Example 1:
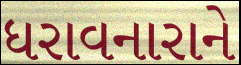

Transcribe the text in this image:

ધરાવનારાને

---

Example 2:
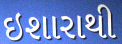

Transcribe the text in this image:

ઇશારાથી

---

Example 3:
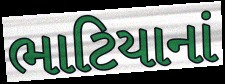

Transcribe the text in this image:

ભાટિયાનાં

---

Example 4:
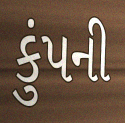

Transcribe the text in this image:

કુંપની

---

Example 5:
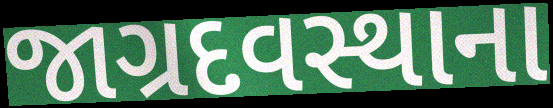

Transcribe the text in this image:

જાગ્રદવસ્થાના